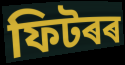
ফিটৰৰ